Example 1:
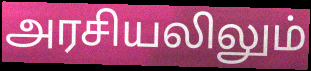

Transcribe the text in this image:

அரசியலிலும்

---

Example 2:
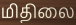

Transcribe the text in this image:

மிதிலை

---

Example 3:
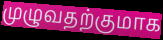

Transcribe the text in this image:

முழுவதற்குமாக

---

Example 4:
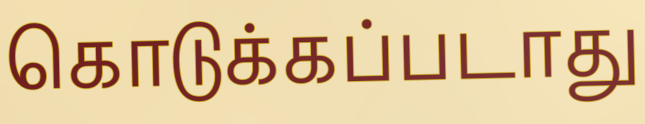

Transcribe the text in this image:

கொடுக்கப்படாது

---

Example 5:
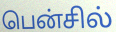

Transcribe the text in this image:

பென்சில்